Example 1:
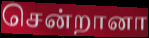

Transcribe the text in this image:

சென்றானா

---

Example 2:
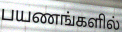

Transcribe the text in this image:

பயணங்களில்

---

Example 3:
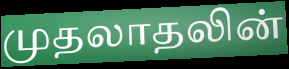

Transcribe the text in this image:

முதலாதலின்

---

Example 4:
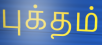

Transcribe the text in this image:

புக்தம்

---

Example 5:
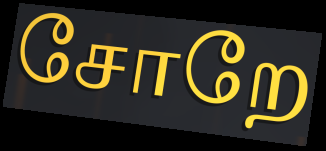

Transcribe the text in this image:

சோறே